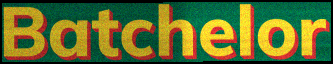
Batchelor